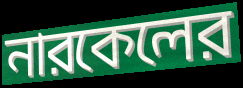
নারকেলের